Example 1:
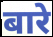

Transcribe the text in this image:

बारे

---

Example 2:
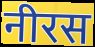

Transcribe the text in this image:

नीरस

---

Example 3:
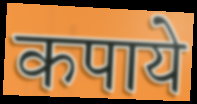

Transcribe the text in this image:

कपाये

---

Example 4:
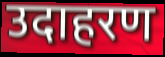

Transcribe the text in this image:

उदाहरण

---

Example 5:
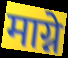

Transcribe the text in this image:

माग्ने